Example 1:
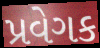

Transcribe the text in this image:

પ્રવેગક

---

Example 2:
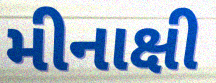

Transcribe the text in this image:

મીનાક્ષી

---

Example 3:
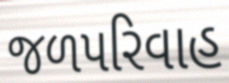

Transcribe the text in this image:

જળપરિવાહ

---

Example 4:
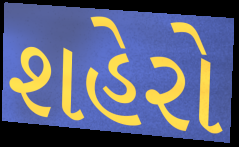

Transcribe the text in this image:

શહેરો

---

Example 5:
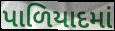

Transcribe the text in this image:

પાળિયાદમાં